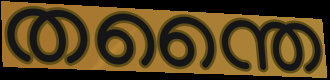
തന്തൈ